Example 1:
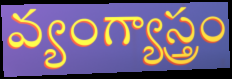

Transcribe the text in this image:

వ్యంగ్యాస్త్రం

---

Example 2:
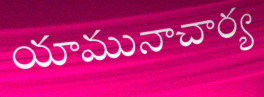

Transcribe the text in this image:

యామునాచార్య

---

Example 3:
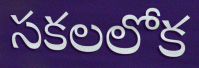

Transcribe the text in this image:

సకలలోక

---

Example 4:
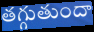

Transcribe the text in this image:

తగ్గుతుందా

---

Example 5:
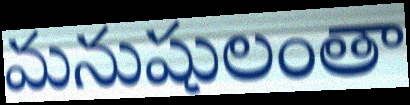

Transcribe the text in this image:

మనుషులంతా